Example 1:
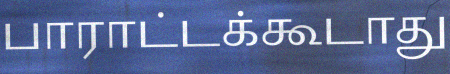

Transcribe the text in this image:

பாராட்டக்கூடாது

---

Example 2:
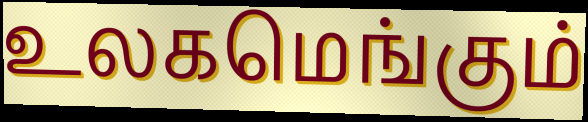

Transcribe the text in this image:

உலகமெங்கும்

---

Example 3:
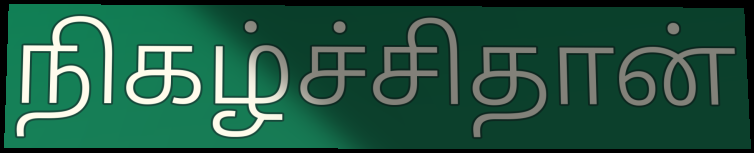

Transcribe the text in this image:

நிகழ்ச்சிதான்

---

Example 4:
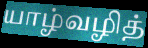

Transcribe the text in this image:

யாழ்வழித்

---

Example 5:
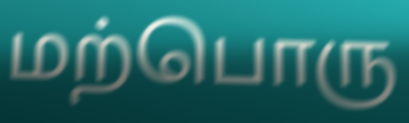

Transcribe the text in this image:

மற்பொரு